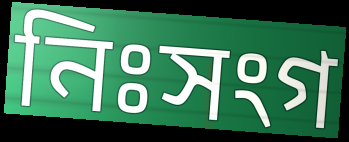
নিঃসংগ